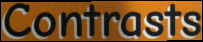
Contrasts